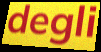
degli